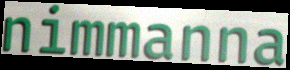
nimmanna